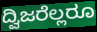
ದ್ವಿಜರೆಲ್ಲರೂ